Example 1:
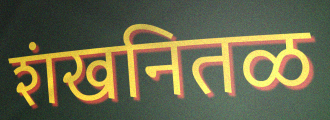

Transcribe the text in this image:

शंखनितळ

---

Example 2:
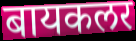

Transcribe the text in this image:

बायकलर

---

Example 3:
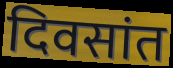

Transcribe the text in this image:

दिवसांत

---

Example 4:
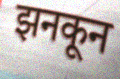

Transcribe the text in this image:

झनकून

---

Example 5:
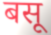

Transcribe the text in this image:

बसू